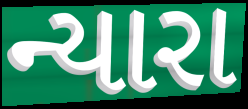
ન્યારા